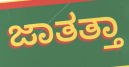
ಜಾತತ್ತಾ